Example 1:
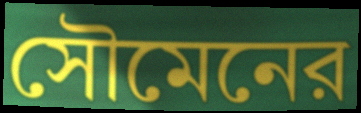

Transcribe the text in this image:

সৌমেনের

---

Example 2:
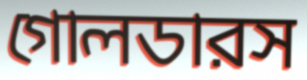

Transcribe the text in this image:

গোলডারস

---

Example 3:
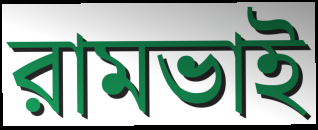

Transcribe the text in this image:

রামভাই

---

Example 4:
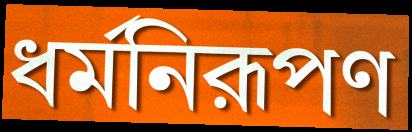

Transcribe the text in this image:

ধর্মনিরূপণ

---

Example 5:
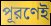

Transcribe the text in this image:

পূরণেই